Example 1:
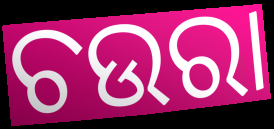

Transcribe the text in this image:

ଚଉରା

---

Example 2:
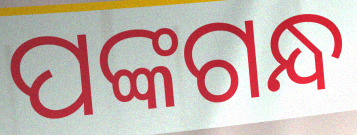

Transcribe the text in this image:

ପଙ୍କଗନ୍ଧ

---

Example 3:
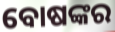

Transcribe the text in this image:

ବୋଷଙ୍କର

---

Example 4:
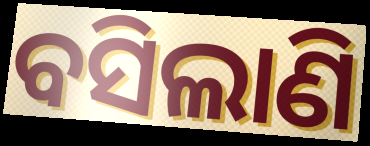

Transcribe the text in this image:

ବସିଲାଣି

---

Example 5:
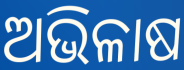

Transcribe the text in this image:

ଅଭିଳାଷ